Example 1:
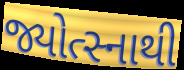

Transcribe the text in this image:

જ્યોત્સ્નાથી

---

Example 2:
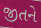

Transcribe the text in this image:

જીતને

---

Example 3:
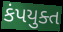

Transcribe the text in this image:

કંપયુક્ત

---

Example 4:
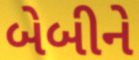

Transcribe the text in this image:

બેબીને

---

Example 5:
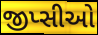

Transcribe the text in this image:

જીપ્સીઓ